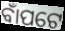
ବାଁପଟେ